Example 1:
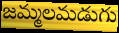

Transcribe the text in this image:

జమ్మలమడుగు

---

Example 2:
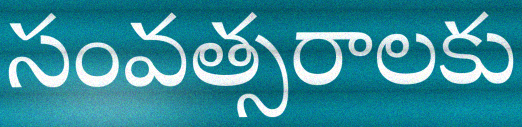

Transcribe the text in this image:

సంవత్సరాలకు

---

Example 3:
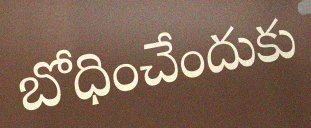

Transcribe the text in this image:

బోధించేందుకు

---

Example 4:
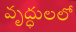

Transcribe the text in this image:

వృద్ధులలో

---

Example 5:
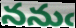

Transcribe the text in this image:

ననుఁ